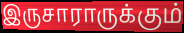
இருசாராருக்கும்